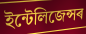
ইন্টেলিজেন্সৰ